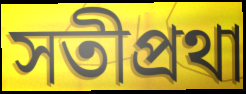
সতীপ্রথা